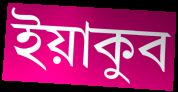
ইয়াকুব